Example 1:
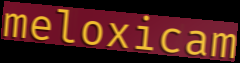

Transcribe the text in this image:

meloxicam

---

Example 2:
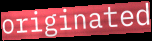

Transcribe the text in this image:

originated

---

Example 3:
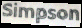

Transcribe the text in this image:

Simpson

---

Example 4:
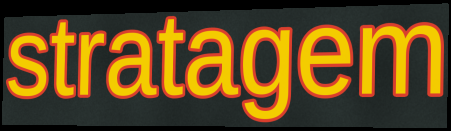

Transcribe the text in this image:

stratagem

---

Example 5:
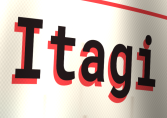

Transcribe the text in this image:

Itagi